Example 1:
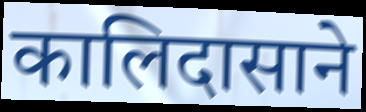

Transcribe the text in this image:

कालिदासाने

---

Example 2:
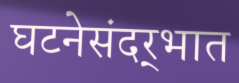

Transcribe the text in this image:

घटनेसंदर्भात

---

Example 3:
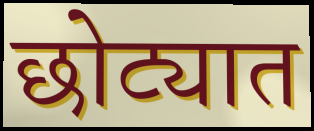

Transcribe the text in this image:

छोट्यात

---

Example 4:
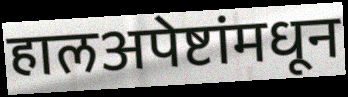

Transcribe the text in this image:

हालअपेष्टांमधून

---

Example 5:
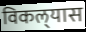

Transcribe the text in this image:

विकल्यास